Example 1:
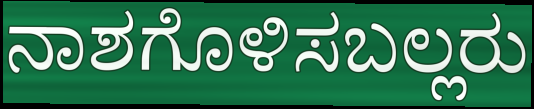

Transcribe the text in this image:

ನಾಶಗೊಳಿಸಬಲ್ಲರು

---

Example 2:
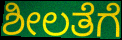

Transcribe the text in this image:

ಶೀಲತೆಗೆ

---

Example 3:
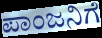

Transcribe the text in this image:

ಪಾಂಜನಿಗೆ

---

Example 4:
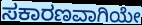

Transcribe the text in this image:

ಸಕಾರಣವಾಗಿಯೇ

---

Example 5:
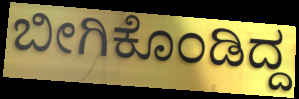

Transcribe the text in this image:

ಬೀಗಿಕೊಂಡಿದ್ದ